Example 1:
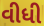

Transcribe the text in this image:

વીધી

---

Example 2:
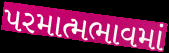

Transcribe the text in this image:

પરમાત્મભાવમાં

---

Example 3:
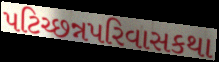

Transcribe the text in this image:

પટિચ્છન્નપરિવાસકથા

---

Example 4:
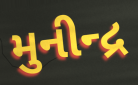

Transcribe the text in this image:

મુનીન્દ્ર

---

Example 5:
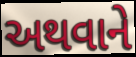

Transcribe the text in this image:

અથવાને